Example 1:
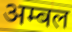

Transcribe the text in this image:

अम्बल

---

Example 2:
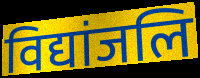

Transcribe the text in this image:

विद्यांजलि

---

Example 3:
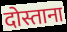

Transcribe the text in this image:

दोस्ताना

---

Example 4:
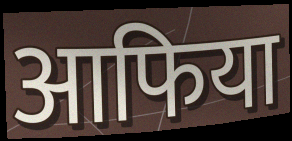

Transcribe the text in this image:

आफिया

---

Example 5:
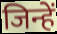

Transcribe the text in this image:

जिन्‍हें